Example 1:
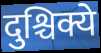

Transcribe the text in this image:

दुश्चिक्ये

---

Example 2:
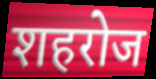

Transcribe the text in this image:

शहरोज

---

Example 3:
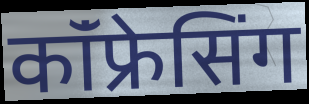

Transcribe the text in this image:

कॉंफ्रेसिंग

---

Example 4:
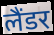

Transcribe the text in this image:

लैंडर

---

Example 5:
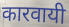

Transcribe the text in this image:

कारवायी